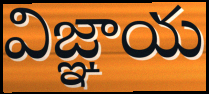
విజ్ఞాయ